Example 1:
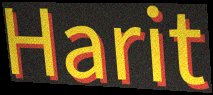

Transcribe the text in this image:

Harit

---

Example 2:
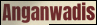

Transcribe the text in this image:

Anganwadis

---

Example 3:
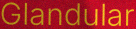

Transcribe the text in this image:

Glandular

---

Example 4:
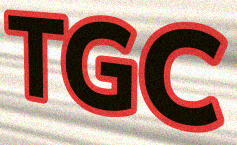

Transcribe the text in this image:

TGC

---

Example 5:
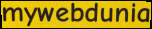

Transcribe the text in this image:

mywebdunia